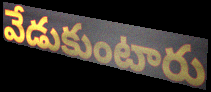
వేడుకుంటారు